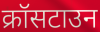
क्रॉसटाउन